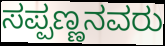
ಸಪ್ಪಣ್ಣನವರು